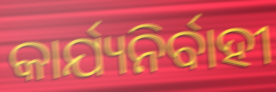
କାର୍ଯ୍ୟନିର୍ବାହୀ